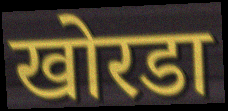
खोरडा